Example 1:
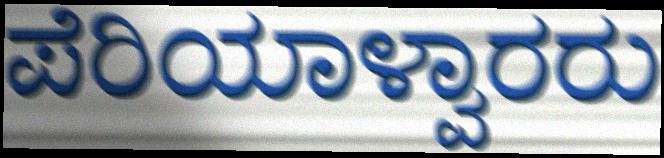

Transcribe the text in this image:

ಪೆರಿಯಾಳ್ವಾರರು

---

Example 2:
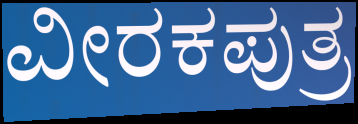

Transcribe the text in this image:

ವೀರಕಪುತ್ರ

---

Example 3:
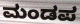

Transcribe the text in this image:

ಮಂಡಪ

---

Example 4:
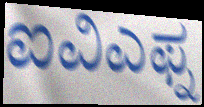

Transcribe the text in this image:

ಐವಿಎಫ್ನ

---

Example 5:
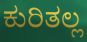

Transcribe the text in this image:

ಕುರಿತಲ್ಲ